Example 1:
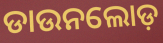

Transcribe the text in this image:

ଡାଉନଲୋଡ଼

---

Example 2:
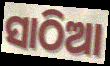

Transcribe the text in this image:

ସାଠିଆ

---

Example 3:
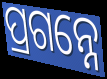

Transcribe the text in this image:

ପ୍ରଗନ୍ନେ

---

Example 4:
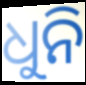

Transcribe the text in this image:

ଧୁନି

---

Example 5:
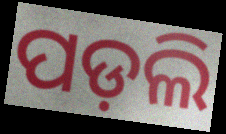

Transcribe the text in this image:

ପଡ଼ଲି